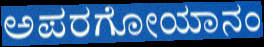
ಅಪರಗೋಯಾನಂ